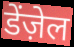
डेंज़ेल